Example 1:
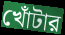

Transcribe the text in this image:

খোঁটার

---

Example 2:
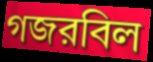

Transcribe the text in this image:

গজরবিল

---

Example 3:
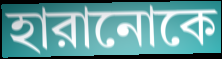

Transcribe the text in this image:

হারানোকে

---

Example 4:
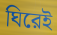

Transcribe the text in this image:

ঘিরেই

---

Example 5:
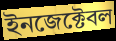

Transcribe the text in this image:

ইনজেক্টেবল